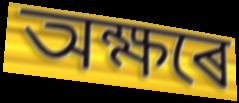
অক্ষৰে